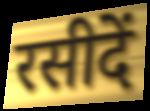
रसीदें